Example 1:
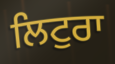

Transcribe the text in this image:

ਲਿਟੁਰਾ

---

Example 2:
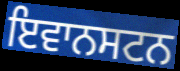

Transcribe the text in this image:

ਇਵਾਨਸਟਨ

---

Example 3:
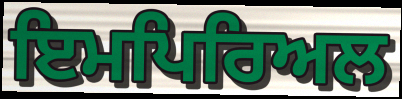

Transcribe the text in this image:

ਇਮਪਿਰਿਅਲ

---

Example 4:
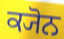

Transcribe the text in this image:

ਕ੍ਯੋਨ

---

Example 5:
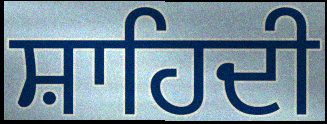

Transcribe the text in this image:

ਸ਼ਾਹਿਦੀ